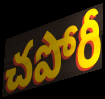
చపోరీ